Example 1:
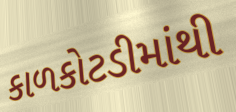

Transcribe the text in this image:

કાળકોટડીમાંથી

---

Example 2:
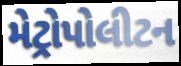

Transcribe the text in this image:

મેટ્રોપોલીટન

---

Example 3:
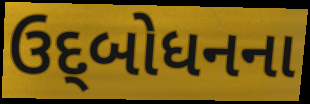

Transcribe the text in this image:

ઉદ્‌બોધનના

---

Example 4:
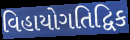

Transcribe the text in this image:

વિહાયોગતિદ્વિક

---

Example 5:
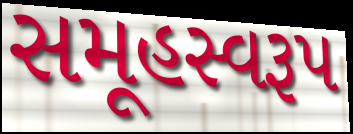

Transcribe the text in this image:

સમૂહસ્વરૂપ